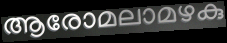
ആരോമലാമഴകു